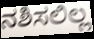
ನಶಿಸಲಿಲ್ಲ